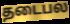
தடைபல